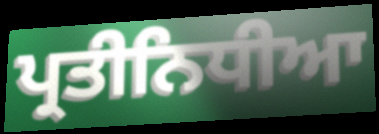
ਪ੍ਰਤੀਨਿਧੀਆ